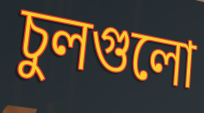
চুলগুলো